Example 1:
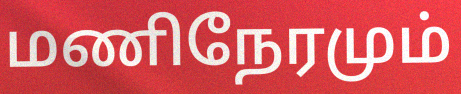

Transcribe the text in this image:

மணிநேரமும்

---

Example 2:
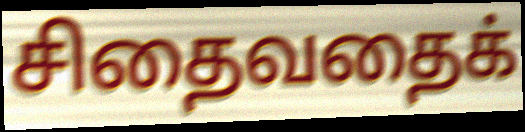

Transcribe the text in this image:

சிதைவதைக்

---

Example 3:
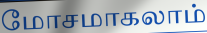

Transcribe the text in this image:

மோசமாகலாம்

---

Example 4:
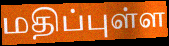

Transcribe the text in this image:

மதிப்புள்ள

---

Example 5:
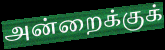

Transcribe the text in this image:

அன்றைக்குக்